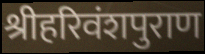
श्रीहरिवंशपुराण